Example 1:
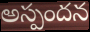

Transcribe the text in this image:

అస్పందన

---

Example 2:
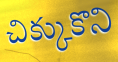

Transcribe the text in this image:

చిక్కుకొని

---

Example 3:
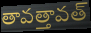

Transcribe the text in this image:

తావత్తావత్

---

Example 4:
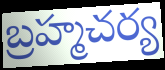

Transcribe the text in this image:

బ్రహ్మచర్య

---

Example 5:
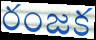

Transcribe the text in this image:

రంజక